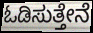
ಓಡಿಸುತ್ತೇನೆ